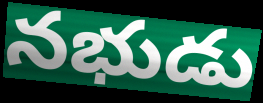
నభుడు